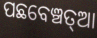
ପଛବେଞ୍ଚତ୍ଆ